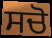
ਸਚੋ